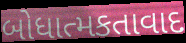
બોધાત્મકતાવાદ